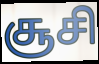
சூசி